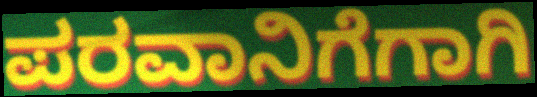
ಪರವಾನಿಗೆಗಾಗಿ